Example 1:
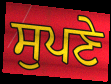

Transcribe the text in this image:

ਸੁਪਣੇ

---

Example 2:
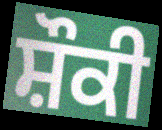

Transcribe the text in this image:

ਸ਼ੌਕੀ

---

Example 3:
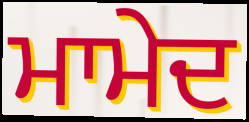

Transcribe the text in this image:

ਮਾਮੇਦ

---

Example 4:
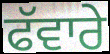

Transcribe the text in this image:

ਫੱਵਾਰੇ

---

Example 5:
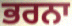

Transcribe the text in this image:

ਭਰਨਾ